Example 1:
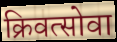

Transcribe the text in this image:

क्रिवत्सोवा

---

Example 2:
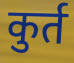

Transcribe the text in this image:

कुर्त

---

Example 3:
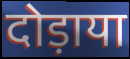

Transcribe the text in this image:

दोड़ाया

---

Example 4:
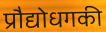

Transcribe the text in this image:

प्रौद्योधगकी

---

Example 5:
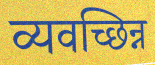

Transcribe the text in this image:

व्यवच्छिन्न